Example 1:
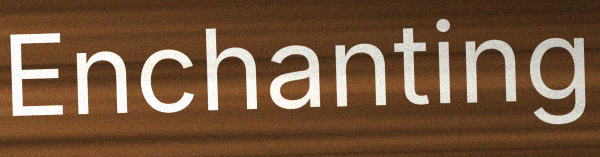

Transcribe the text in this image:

Enchanting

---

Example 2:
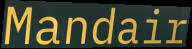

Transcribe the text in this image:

Mandair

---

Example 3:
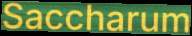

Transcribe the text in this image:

Saccharum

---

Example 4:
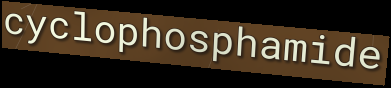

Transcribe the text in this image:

cyclophosphamide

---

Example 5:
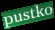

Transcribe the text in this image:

pustko